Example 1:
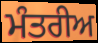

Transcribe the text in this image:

ਮੰਤਰੀਅ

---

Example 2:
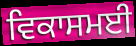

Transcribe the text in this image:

ਵਿਕਾਸਮਈ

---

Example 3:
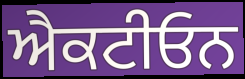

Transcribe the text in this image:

ਐਕਟੀਓਨ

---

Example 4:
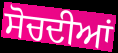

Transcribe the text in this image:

ਸੋਚਦੀਆਂ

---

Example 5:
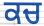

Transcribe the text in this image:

ਕਚ